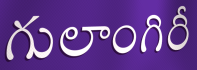
గులాంగిరీ